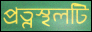
প্রত্নস্থলটি